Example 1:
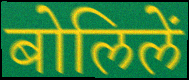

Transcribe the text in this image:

बोलिलें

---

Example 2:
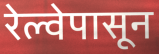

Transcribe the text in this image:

रेल्वेपासून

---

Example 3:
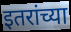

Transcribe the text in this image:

इतरांच्या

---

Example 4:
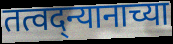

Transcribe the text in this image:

तत्वद्न्यानाच्या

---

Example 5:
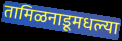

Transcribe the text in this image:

तामिळनाडूमधल्या